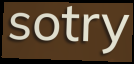
sotry